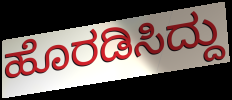
ಹೊರಡಿಸಿದ್ದು